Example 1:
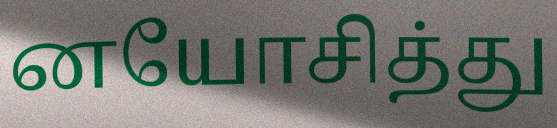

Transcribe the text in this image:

னயோசித்து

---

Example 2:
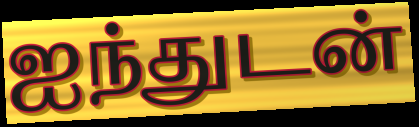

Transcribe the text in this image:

ஐந்துடன்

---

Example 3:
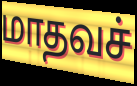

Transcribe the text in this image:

மாதவச்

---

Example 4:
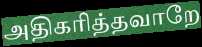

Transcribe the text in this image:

அதிகரித்தவாறே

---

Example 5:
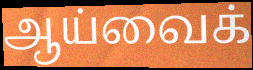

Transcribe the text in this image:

ஆய்வைக்